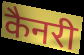
कैनरी